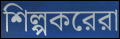
শিল্পকরেরা